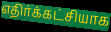
எதிர்க்கட்சியாக